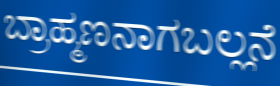
ಬ್ರಾಹ್ಮಣನಾಗಬಲ್ಲನೆ